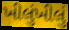
ખીલુંખીલું